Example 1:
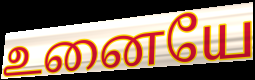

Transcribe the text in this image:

உனையே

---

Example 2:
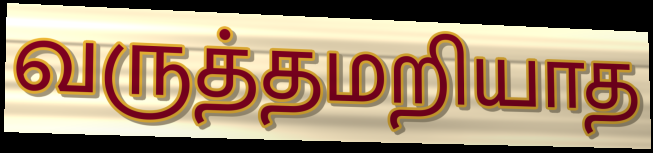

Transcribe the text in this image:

வருத்தமறியாத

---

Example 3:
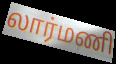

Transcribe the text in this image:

லார்மணி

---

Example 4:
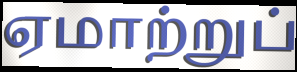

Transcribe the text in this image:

ஏமாற்றுப்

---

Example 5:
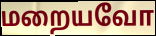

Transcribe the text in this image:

மறையவோ